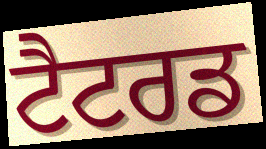
ਟੈਟਰਡ